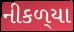
નીકળ્‌યા